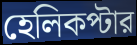
হেলিকপ্টার